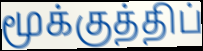
மூக்குத்திப்